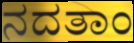
ನದತಾಂ